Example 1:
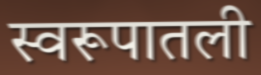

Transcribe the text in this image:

स्वरूपातली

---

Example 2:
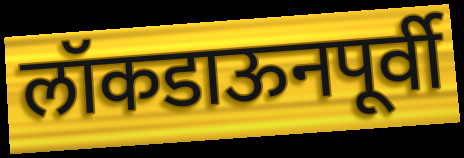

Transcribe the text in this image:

लॉकडाऊनपूर्वी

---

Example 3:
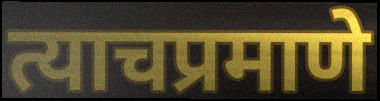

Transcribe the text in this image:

त्याचप्रमाणे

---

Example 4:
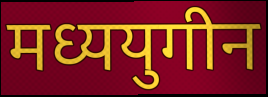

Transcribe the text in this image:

मध्ययुगीन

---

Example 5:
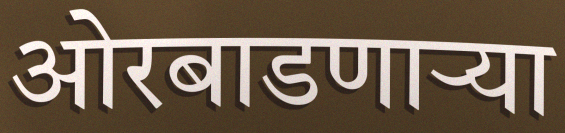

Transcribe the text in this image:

ओरबाडणाऱ्या